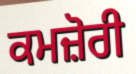
ਕਮਜ਼ੋਰੀ